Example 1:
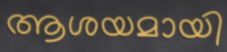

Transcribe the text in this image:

ആശയമായി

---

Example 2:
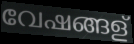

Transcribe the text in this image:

വേഷങ്ങള്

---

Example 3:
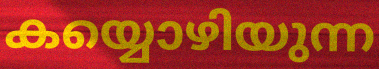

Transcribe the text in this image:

കയ്യൊഴിയുന്ന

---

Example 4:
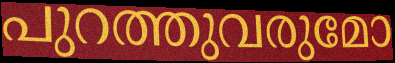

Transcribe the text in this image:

പുറത്തുവരുമോ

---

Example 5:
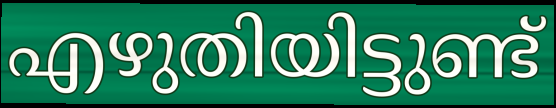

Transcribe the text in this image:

എഴുതിയിട്ടുണ്ട്